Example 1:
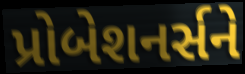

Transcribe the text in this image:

પ્રોબેશનર્સને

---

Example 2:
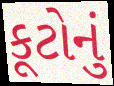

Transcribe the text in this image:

કૂટોનું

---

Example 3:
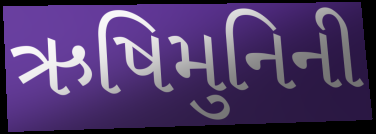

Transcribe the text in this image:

ઋષિમુનિની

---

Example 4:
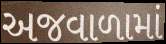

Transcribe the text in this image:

અજવાળામાં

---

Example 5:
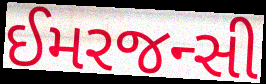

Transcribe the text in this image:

ઈમરજન્સી